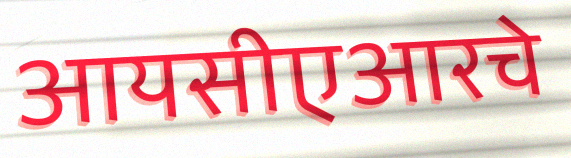
आयसीएआरचे